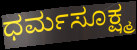
ಧರ್ಮಸೂಕ್ಷ್ಮ